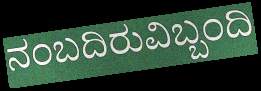
ನಂಬದಿರುವಿಬ್ಬಂದಿ